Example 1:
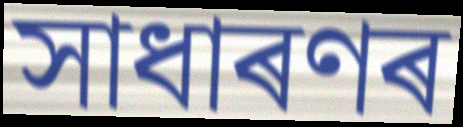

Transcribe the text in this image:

সাধাৰণৰ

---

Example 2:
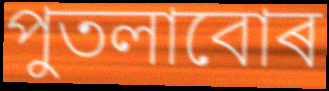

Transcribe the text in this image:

পুতলাবোৰ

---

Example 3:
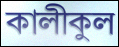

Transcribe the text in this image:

কালীকুল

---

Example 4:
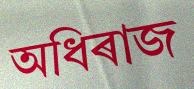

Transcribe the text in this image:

অধিৰাজ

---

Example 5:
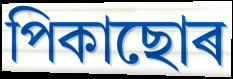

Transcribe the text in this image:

পিকাছোৰ